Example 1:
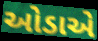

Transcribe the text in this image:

ઓડાએ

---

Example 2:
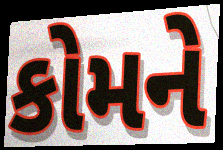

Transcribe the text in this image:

કોમને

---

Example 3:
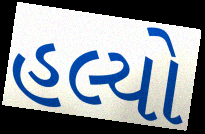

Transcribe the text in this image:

હલ્યો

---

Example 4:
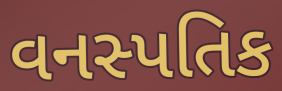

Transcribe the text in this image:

વનસ્પતિક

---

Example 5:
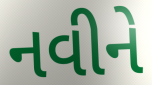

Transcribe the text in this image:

નવીને